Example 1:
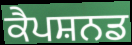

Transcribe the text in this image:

ਕੈਪਸ਼ਨਡ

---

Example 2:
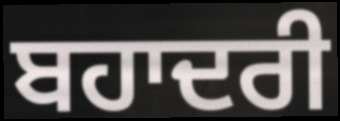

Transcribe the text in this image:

ਬਹਾਦਰੀ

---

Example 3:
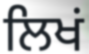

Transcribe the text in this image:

ਲਿਖਂ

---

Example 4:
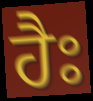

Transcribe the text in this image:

ਹੈਃ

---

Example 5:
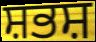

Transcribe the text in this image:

ਸ਼ਭਸ਼